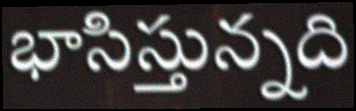
భాసిస్తున్నది